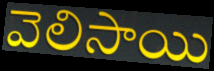
వెలిసాయి